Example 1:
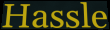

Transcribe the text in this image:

Hassle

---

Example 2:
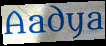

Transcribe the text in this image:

Aadya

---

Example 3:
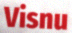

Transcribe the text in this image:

Visnu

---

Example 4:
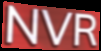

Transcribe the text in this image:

NVR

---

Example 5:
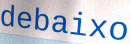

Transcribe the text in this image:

debaixo